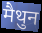
मैथुन